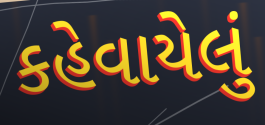
કહેવાયેલું